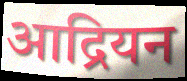
आद्रियन